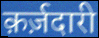
क़र्ज़दारी